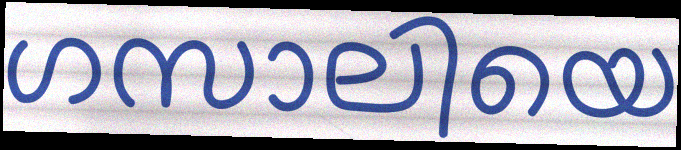
ഗസാലിയെ